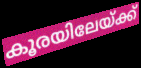
കൂരയിലേയ്ക്ക്